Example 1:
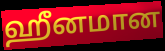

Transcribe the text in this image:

ஹீனமான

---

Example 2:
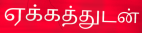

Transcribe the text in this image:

ஏக்கத்துடன்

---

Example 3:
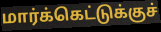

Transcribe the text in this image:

மார்க்கெட்டுக்குச்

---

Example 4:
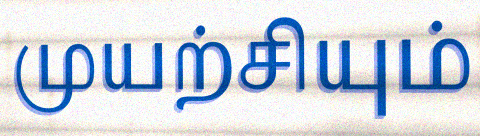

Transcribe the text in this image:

முயற்சியும்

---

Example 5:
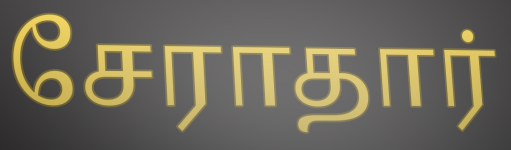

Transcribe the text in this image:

சேராதார்